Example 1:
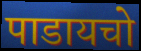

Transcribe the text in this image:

पाडायचो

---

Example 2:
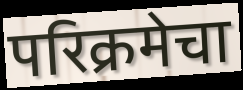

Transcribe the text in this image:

परिक्रमेचा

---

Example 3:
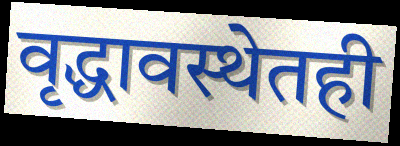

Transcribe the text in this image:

वृद्धावस्थेतही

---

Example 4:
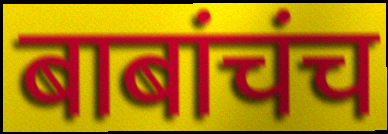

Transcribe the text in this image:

बाबांचंच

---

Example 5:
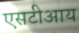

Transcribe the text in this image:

एसटीआय